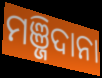
ମଞ୍ଜିଦାନା